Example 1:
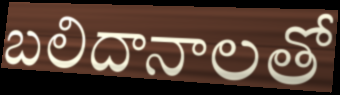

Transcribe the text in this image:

బలిదానాలతో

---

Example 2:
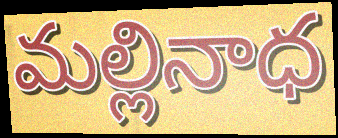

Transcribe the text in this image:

మల్లినాధ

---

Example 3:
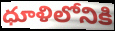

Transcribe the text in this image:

ధూళిలోనికి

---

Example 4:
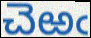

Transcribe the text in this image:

చెఱఁ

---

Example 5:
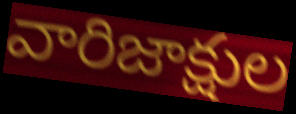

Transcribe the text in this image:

వారిజాక్షుల